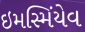
ઇમસ્મિંયેવ